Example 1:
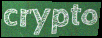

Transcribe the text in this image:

crypto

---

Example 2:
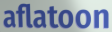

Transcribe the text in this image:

aflatoon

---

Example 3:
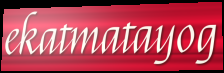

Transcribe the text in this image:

ekatmatayog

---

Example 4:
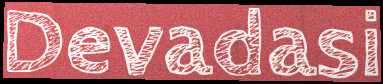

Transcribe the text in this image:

Devadasi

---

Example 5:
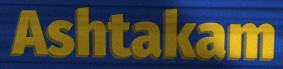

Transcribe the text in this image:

Ashtakam